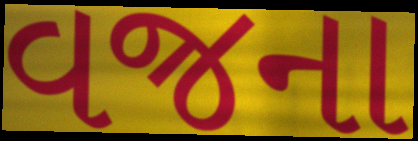
વજ્રના